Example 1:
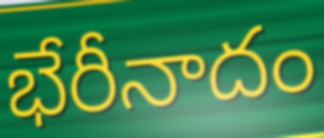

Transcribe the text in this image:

భేరీనాదం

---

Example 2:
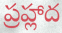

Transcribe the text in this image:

ప్రహ్లాద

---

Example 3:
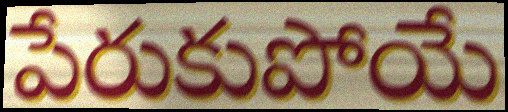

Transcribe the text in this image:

పేరుకుపోయే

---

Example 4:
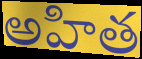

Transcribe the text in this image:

అహిత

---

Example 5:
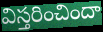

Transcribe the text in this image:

విస్తరించిందా